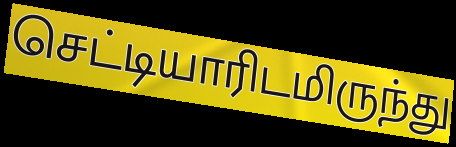
செட்டியாரிடமிருந்து